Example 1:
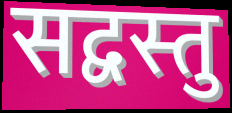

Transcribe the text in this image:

सद्वस्तु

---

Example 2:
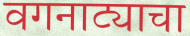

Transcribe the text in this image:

वगनाट्याचा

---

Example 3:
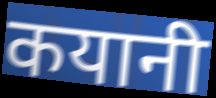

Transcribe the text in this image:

कयानी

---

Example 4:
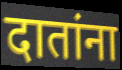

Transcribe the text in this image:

दातांना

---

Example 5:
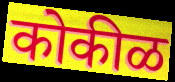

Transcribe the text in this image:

कोकीळ